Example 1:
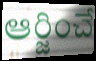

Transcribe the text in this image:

ఆర్జించే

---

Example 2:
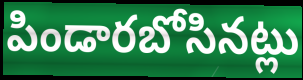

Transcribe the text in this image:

పిండారబోసినట్లు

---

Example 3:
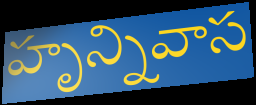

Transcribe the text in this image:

హృన్నివాస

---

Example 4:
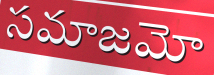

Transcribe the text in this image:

సమాజమో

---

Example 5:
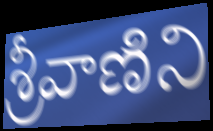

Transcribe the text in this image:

శ్రీవాణిని